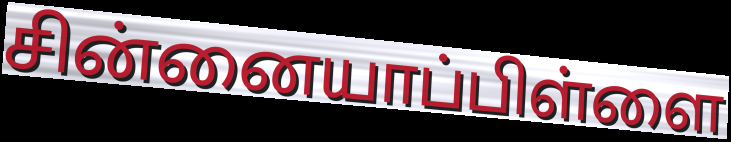
சின்னையாப்பிள்ளை